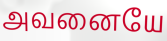
அவனையே